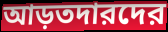
আড়তদারদের